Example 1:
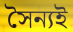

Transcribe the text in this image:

সৈন্যই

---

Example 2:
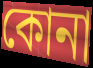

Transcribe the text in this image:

কোনা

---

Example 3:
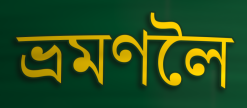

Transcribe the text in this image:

ভ্ৰমণলৈ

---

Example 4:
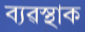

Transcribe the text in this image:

ব্যৱস্থাক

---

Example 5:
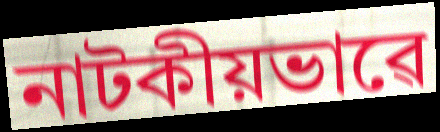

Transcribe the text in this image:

নাটকীয়ভাৱে